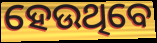
ହେଉଥିବେ